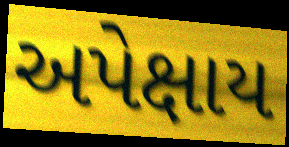
અપેક્ષાય